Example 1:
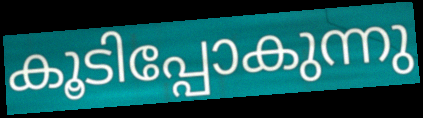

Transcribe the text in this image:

കൂടിപ്പോകുന്നു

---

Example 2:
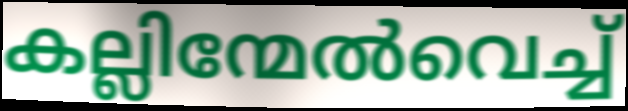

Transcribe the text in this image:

കല്ലിന്മേൽവെച്ച്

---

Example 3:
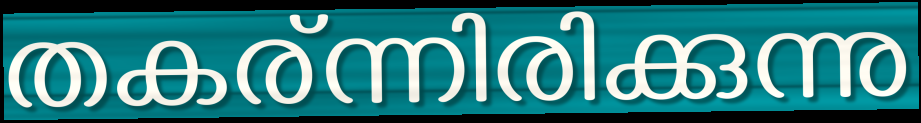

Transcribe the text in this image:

തകര്ന്നിരിക്കുന്നു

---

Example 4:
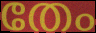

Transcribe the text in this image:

തേം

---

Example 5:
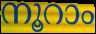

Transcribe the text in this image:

നൂറാം